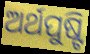
ଅର୍ଥପୁଷ୍ଟି